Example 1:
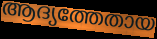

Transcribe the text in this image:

ആദ്യത്തേതായ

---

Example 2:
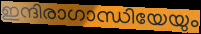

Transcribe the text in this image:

ഇന്ദിരാഗാന്ധിയേയും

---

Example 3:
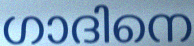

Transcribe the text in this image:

ഗാദിനെ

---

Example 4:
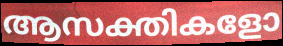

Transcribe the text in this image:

ആസക്തികളോ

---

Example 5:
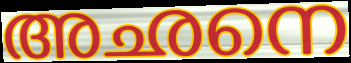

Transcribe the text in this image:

അഛനെ